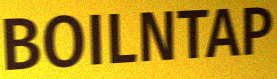
BOILNTAP